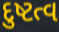
દુષ્ટત્વ